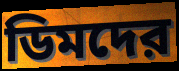
ডিমদের